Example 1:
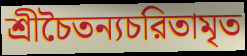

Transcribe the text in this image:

শ্রীচৈতন্যচরিতামৃত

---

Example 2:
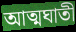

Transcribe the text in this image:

আত্মঘাতী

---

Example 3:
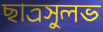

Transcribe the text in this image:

ছাত্রসুলভ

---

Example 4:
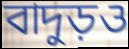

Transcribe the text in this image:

বাদুড়ও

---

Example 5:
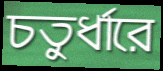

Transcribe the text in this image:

চতুর্ধারে